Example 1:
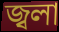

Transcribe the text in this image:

জ্বলা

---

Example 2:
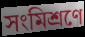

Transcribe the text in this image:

সংমিশ্ৰণে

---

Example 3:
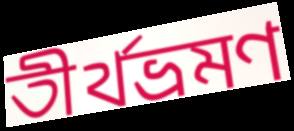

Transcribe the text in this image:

তীৰ্থভ্ৰমণ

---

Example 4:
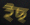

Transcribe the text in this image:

ইছ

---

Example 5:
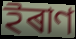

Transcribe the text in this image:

ইৰাণ